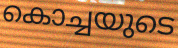
കൊച്ചയുടെ